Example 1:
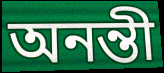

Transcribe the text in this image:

অনন্তী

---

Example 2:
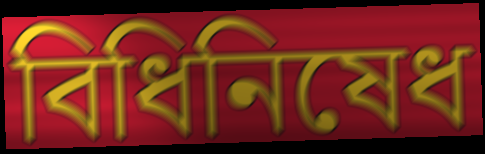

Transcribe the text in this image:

বিধিনিষেধ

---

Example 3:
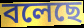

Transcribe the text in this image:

বলেছে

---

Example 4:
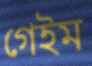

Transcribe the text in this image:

গেইম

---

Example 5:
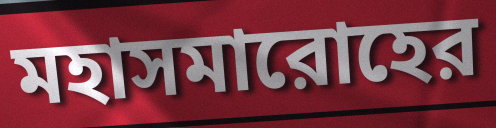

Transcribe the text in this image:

মহাসমারোহের